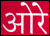
ओरे